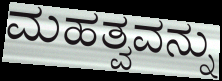
ಮಹತ್ವವನ್ನು